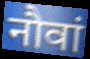
नौवां